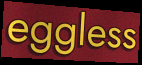
eggless